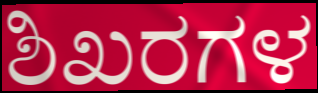
ಶಿಖರಗಳ